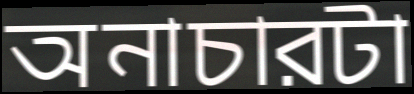
অনাচারটা